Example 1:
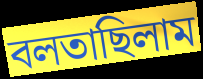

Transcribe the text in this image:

বলতাছিলাম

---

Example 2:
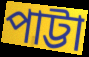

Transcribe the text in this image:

পাট্টা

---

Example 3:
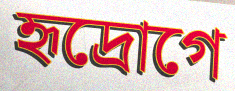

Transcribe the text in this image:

হৃদ্রোগে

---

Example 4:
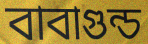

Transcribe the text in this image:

বাবাগুন্ড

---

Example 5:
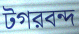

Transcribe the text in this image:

টগরবন্দ